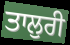
ਤਾਲੁਰੀ